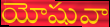
యోషువా